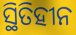
ସ୍ଥିତିହୀନ